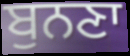
ਬੁਨਣਾ